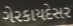
ગેરકાયદેસર